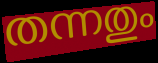
തന്നതും